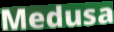
Medusa